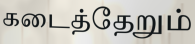
கடைத்தேறும்